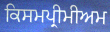
ਕਿਸਮਪ੍ਰੀਮੀਅਮ